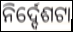
ନିର୍ଦ୍ଦେଶଟା